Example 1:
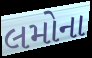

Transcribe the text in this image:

લમોના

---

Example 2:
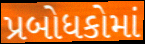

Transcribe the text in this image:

પ્રબોધકોમાં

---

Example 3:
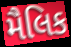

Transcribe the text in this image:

મૈલિક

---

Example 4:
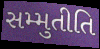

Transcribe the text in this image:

સમ્મુતીતિ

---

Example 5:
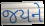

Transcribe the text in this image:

જયને